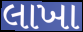
લાખા